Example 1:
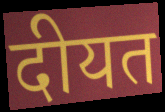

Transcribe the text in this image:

दीयत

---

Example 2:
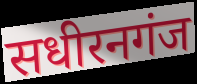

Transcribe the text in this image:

सधीरनगंज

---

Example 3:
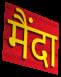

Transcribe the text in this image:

मैंदा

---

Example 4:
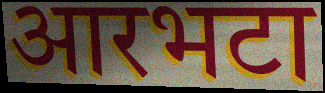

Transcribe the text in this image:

आरभटा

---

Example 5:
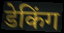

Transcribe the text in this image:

डेकिंग